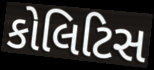
કોલિટિસ